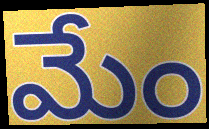
మేం